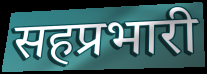
सहप्रभारी